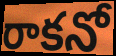
రాకనో